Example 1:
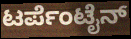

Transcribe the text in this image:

ಟರ್ಪೆಂಟೈನ್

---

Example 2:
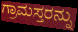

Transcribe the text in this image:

ಗ್ರಾಮಸ್ತರನ್ನು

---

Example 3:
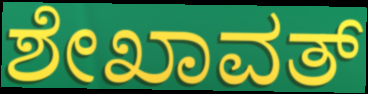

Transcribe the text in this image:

ಶೇಖಾವತ್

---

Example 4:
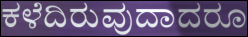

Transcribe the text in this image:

ಕಳೆದಿರುವುದಾದರೂ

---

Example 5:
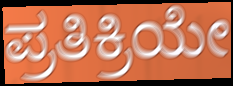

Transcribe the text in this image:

ಪ್ರತಿಕ್ರಿಯೇ